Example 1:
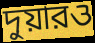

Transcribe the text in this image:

দুয়ারও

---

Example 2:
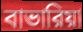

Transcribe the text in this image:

বাভারিয়া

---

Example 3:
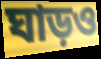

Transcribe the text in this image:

ঘাড়ও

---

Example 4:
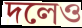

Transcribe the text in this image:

দলেও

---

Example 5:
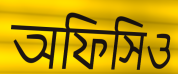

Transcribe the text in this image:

অফিসিও